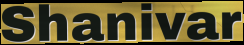
Shanivar